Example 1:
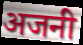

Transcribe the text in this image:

अजनी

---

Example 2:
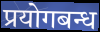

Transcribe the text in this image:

प्रयोगबन्ध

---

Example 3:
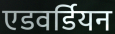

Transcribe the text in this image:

एडवर्डियन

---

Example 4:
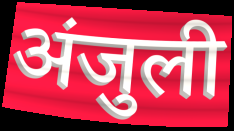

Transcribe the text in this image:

अंजुली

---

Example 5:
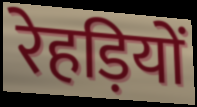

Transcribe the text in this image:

रेहड़ियों